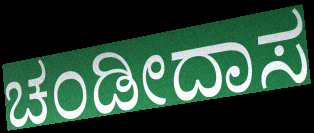
ಚಂಡೀದಾಸ